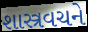
શાસ્ત્રવચને